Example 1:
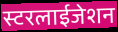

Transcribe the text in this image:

स्टरलाईजेशन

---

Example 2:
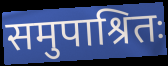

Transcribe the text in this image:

समुपाश्रितः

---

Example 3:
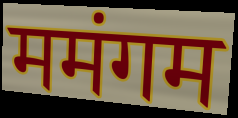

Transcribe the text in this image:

ममंगम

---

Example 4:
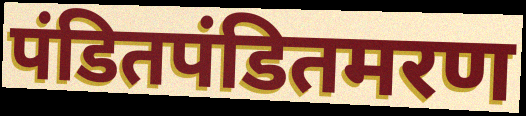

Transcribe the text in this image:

पंडितपंडितमरण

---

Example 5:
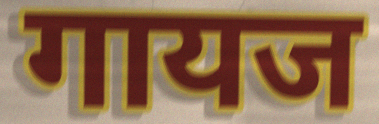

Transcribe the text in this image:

गायज